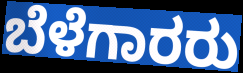
ಬೆಳೆಗಾರರು